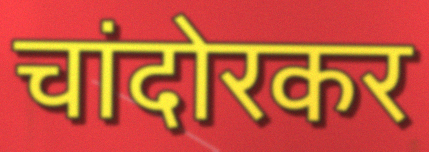
चांदोरकर